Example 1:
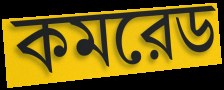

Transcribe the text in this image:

কমরেড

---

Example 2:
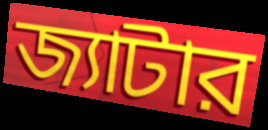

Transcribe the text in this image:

জ্যাটার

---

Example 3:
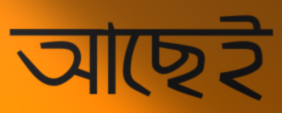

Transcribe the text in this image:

আছেই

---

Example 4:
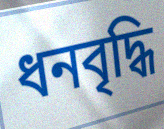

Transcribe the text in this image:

ধনবৃদ্ধি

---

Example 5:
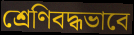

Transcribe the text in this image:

শ্রেণিবদ্ধভাবে